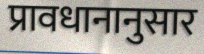
प्रावधानानुसार